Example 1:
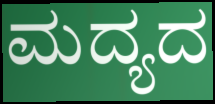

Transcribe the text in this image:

ಮದ್ಯದ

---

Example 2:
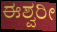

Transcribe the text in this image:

ಈಶ್ವರೀ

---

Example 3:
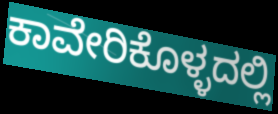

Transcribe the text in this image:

ಕಾವೇರಿಕೊಳ್ಳದಲ್ಲಿ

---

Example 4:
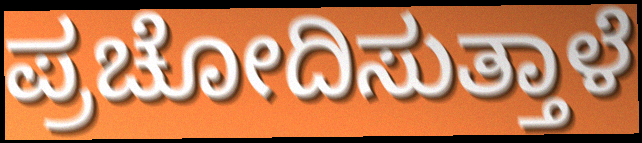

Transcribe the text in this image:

ಪ್ರಚೋದಿಸುತ್ತಾಳೆ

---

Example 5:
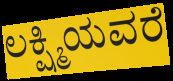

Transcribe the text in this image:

ಲಕ್ಷ್ಮಿಯವರೆ